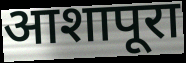
आशापूरा